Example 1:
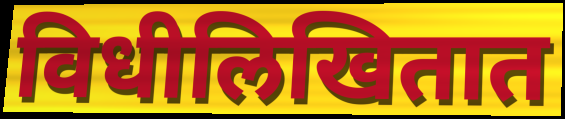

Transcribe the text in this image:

विधीलिखितात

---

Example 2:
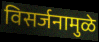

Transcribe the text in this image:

विसर्जनामुळे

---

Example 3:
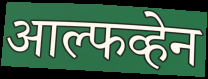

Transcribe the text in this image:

आल्फव्हेन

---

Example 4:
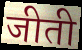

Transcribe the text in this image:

जीती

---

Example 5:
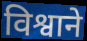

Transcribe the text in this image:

विश्वाने